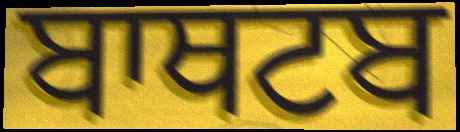
ਬਾਥਟਬ